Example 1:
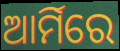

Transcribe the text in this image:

ଆର୍ମିରେ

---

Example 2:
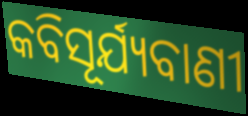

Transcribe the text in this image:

କବିସୂର୍ଯ୍ୟବାଣୀ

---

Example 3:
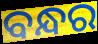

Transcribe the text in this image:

ବନ୍ଧର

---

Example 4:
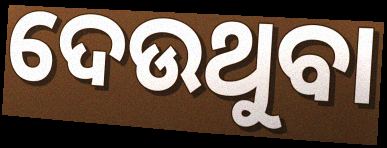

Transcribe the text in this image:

ଦେଉଥୁବା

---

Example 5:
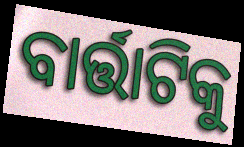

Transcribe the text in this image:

ବାର୍ତ୍ତାଟିକୁ